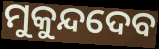
ମୁକୁନ୍ଦଦେବ